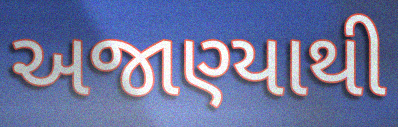
અજાણ્યાથી